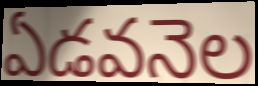
ఏడవనెల